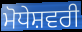
ਮੋਧੇਸ਼ਵਰੀ